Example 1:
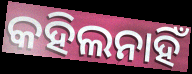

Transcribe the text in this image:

କହିଲନାହିଁ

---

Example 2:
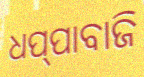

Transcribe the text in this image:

ଧପ୍‌ପାବାଜି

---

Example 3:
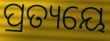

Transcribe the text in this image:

ପ୍ରତ୍ୟୟେ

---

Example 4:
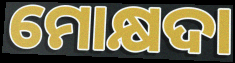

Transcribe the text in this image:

ମୋକ୍ଷଦା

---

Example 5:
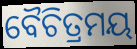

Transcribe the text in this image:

ବୈଚିତ୍ରମୟ